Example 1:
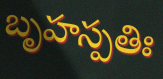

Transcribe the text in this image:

బృహస్పతిః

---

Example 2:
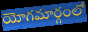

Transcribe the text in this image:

యోగమార్గంలో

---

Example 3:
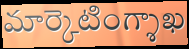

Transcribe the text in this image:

మార్కెటింగ్శాఖ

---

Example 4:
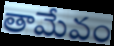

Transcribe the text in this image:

తామేవం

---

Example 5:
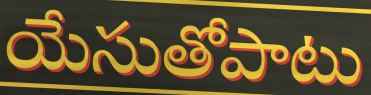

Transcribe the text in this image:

యేసుతోపాటు